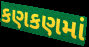
કણકણમાં